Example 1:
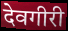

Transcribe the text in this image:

देवगीरी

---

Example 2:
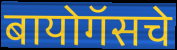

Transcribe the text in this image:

बायोगॅसचे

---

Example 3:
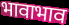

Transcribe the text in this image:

भावाभाव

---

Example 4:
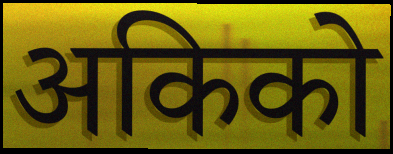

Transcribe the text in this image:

अकिको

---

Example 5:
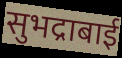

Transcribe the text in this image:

सुभद्राबाई